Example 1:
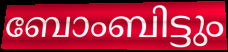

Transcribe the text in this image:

ബോംബിട്ടും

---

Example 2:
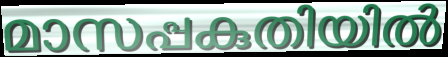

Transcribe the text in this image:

മാസപ്പകുതിയിൽ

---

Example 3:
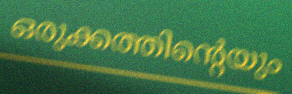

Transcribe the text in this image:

ഒരുക്കത്തിന്റെയും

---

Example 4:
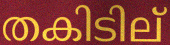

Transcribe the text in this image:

തകിടില്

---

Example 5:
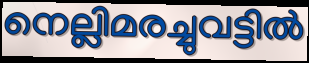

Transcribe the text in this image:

നെല്ലിമരച്ചുവട്ടിൽ